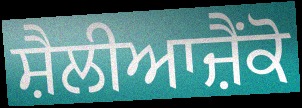
ਸ਼ੈਲੀਆਜ਼ੈਂਕੋ